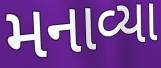
મનાવ્યા